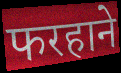
फरहाने